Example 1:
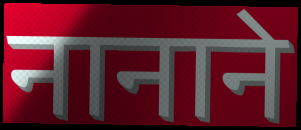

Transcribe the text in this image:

नानाने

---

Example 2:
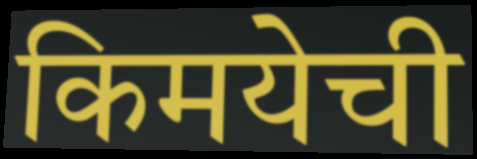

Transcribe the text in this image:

किमयेची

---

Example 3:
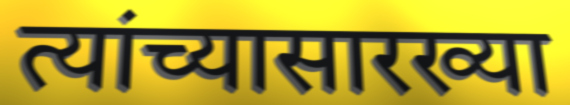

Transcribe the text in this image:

त्यांच्यासारख्या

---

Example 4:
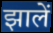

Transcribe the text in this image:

झालें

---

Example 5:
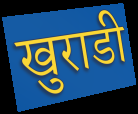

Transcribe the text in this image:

खुराडी